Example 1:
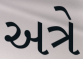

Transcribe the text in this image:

અત્રે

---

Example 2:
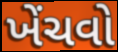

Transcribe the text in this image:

ખેંચવો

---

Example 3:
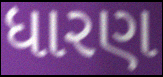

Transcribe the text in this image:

ધારણ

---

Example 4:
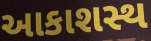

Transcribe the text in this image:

આકાશસ્થ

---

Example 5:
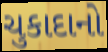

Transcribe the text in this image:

ચુકાદાનો